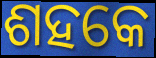
ଶହକେ